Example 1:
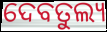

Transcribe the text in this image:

ଦେବତୁଲ୍ୟ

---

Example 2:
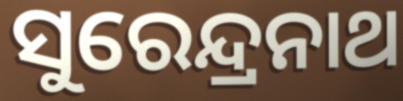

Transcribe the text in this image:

ସୁରେନ୍ଦ୍ରନାଥ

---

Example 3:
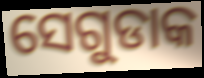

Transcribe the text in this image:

ସେଗୁଡାକ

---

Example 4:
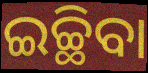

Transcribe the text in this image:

ଇଚ୍ଛିବା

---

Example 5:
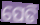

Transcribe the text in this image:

ପେଡି